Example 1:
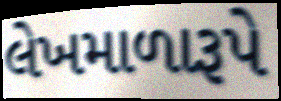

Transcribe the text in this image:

લેખમાળારૂપે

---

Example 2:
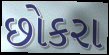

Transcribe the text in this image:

છોકરા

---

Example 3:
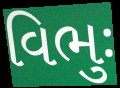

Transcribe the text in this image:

વિભુઃ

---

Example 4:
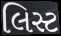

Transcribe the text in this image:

લિસ્ટ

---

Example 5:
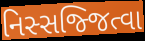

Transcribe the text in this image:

નિસ્સજ્જિત્વા